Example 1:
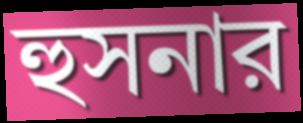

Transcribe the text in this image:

হুসনার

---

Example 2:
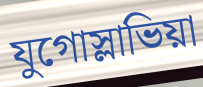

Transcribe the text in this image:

যুগোস্লাভিয়া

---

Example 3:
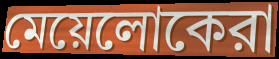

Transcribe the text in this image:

মেয়েলোকেরা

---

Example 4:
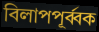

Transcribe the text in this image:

বিলাপপূর্ব্বক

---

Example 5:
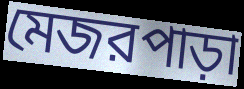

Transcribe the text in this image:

মেজরপাড়া